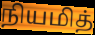
நியமித்